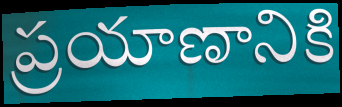
ప్రయాణానికి